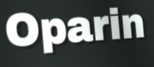
Oparin